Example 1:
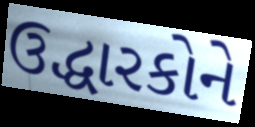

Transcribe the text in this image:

ઉદ્ધારકોને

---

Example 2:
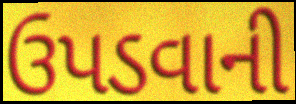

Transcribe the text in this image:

ઉપડવાની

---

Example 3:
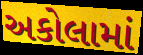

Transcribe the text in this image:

અકોલામાં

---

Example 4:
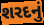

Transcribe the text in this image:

શરદનું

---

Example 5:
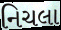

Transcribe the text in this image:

નિચલા